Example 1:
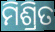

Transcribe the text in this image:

ମିଶ୍ରିତ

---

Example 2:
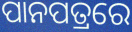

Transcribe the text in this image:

ପାନପତ୍ରରେ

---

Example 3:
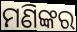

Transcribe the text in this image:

ମଣିଙ୍କର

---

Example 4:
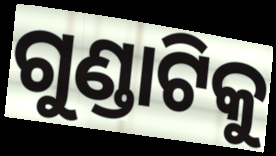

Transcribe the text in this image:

ଗୁଣ୍ଡାଟିକୁ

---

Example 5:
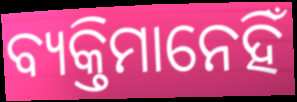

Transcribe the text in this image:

ବ୍ୟକ୍ତିମାନେହିଁ